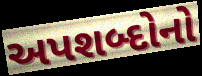
અપશબ્દોનો